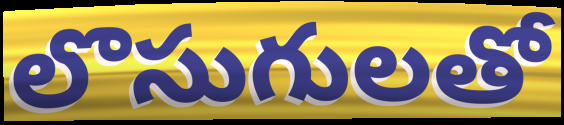
లొసుగులతో